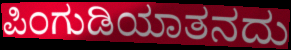
ಪಿಂಗುಡಿಯಾತನದು